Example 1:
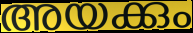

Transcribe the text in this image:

അയക്കും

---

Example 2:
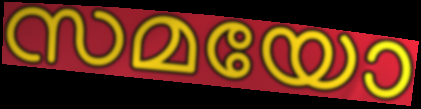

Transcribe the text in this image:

സമയോ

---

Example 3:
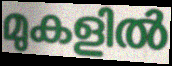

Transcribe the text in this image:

മുകളിൽ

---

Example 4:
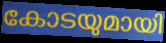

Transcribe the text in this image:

കോടയുമായി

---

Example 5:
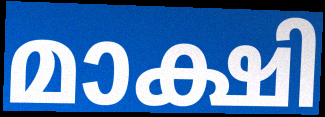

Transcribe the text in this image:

മാക്ഷി